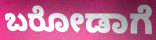
ಬರೋಡಾಗೆ